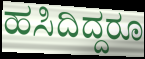
ಹಸಿದಿದ್ದರೂ